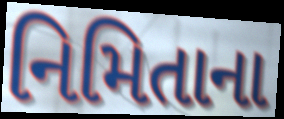
નિમિતાના